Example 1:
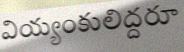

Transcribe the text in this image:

వియ్యంకులిద్దరూ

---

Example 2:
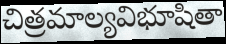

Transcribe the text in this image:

చిత్రమాల్యవిభూషితా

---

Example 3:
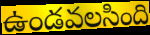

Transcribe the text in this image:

ఉండవలసింది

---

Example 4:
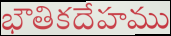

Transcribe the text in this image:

భౌతికదేహము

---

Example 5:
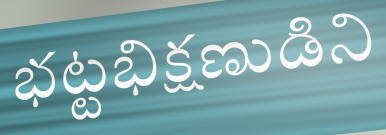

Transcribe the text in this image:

భట్టభిక్షణుడిని